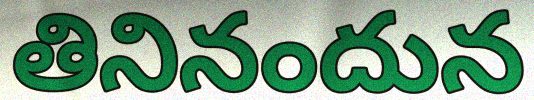
తినినందున